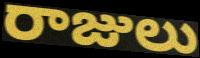
రాజులు